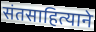
संतसाहित्याने